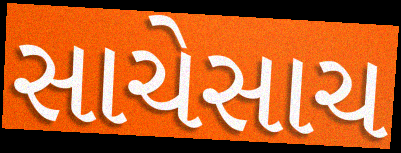
સાચેસાચ